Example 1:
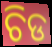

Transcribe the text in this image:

ଚିଡ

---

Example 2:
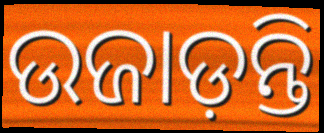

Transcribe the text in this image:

ଉଜାଡ଼ନ୍ତି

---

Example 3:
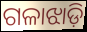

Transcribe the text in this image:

ଗଳାଝାଡ଼ି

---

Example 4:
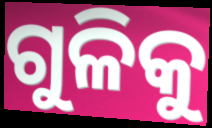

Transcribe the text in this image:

ଗୁଳିକୁ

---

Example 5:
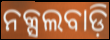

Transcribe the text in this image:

ନକ୍ସଲବାଡ଼ି